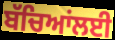
ਬੱਚਿਆਂਲਈ